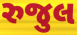
રુજુલ